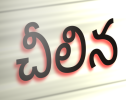
చీలిన